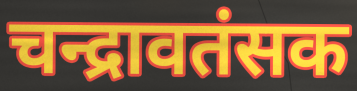
चन्द्रावतंसक